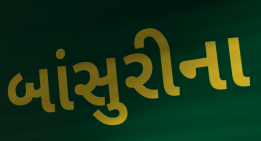
બાંસુરીના